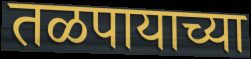
तळपायाच्या